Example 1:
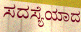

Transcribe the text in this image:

ಸದಸ್ಯೆಯಾದ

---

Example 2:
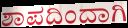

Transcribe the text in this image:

ಶಾಪದಿಂದಾಗಿ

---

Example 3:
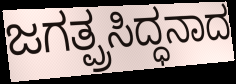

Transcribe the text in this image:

ಜಗತ್ಪ್ರಸಿದ್ಧನಾದ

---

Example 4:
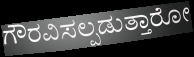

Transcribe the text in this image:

ಗೌರವಿಸಲ್ಪಡುತ್ತಾರೋ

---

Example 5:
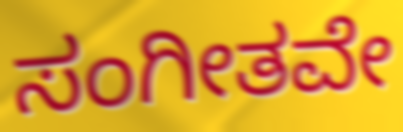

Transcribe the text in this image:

ಸಂಗೀತವೇ